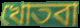
খোতবা